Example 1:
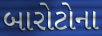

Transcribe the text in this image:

બારોટોના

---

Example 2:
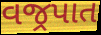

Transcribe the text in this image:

વજ્રપાત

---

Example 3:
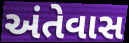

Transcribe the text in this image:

અંતેવાસ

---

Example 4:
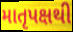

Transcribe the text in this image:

માતૃપક્ષથી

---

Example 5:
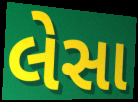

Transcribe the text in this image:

લેસા